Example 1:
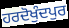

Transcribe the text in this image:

ਹਰਦੋਖੁੰਦਪੁਰ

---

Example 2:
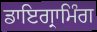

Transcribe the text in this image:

ਡਾਇਗ੍ਰਾਮਿੰਗ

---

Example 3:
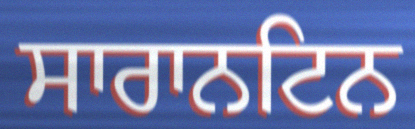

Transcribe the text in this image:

ਸਾਰਾਨਟਿਨ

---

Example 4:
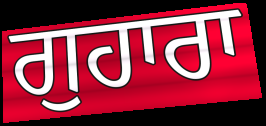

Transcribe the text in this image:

ਗੁਹਾਰਾ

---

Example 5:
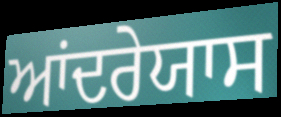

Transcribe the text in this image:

ਆਂਦਰੇਯਾਸ